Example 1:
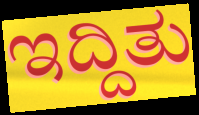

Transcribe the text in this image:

ಇದ್ದಿತು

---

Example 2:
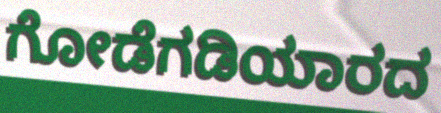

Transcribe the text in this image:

ಗೋಡೆಗಡಿಯಾರದ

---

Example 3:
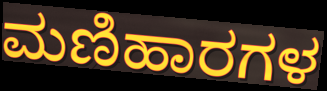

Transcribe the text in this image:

ಮಣಿಹಾರಗಳ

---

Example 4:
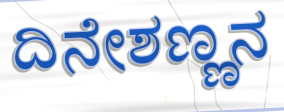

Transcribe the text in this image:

ದಿನೇಶಣ್ಣನ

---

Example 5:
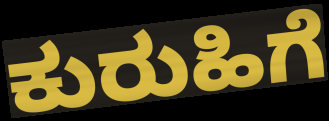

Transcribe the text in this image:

ಕುರುಹಿಗೆ